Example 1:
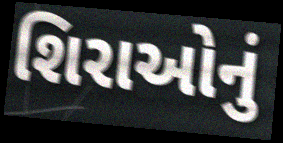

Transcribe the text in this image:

શિરાઓનું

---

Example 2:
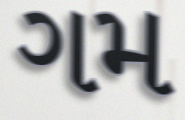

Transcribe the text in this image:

ગમ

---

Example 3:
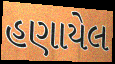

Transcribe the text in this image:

હણાયેલ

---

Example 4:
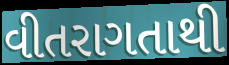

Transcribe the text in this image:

વીતરાગતાથી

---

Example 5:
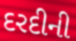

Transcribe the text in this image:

દરદીની